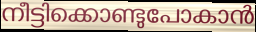
നീട്ടിക്കൊണ്ടുപോകാൻ